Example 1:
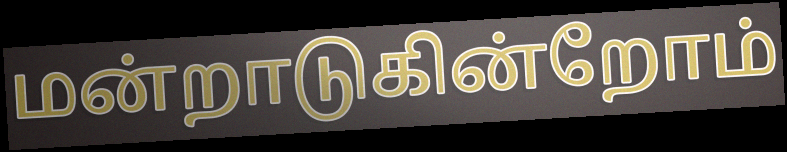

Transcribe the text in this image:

மன்றாடுகின்றோம்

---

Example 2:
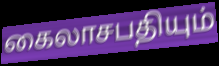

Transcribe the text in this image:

கைலாசபதியும்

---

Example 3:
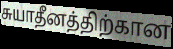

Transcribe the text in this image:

சுயாதீனத்திற்கான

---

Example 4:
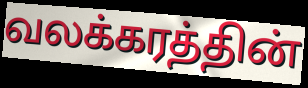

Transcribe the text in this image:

வலக்கரத்தின்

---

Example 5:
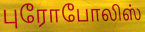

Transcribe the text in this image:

புரோபோலிஸ்